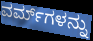
ವರ್ಮ್‌ಗಳನ್ನು